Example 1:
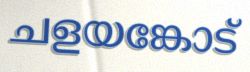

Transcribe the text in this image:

ചളയങ്കോട്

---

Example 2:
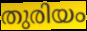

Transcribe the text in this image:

തുരിയം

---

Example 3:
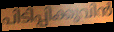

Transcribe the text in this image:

പിടിപ്പിക്കുവിൻ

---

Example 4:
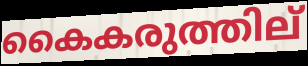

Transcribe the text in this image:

കൈകരുത്തില്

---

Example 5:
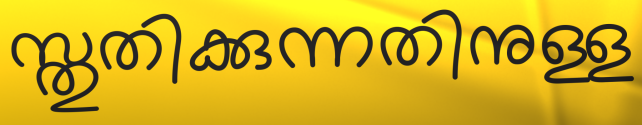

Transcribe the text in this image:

സ്തുതിക്കുന്നതിനുള്ള